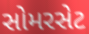
સોમરસેટ